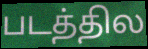
படத்தில